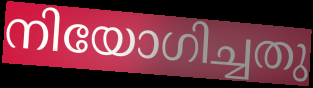
നിയോഗിച്ചതു